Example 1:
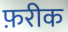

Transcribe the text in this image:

फ़रीक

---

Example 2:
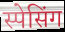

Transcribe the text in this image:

स्पेसिंग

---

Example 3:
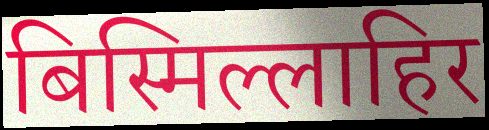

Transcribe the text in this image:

बिस्मिल्लाहिर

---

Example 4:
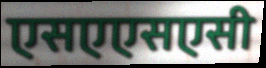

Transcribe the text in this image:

एसएएसएसी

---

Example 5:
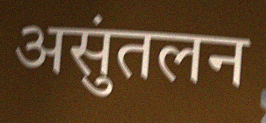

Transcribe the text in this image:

असुंतलन